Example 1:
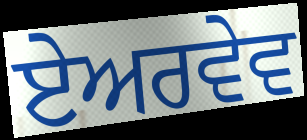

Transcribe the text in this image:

ਏਅਰਵੇਵ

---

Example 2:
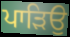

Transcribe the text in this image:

ਪਾੜਿਉ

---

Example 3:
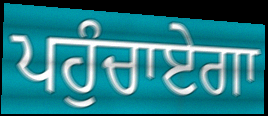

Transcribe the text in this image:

ਪਹੁੰਚਾਏਗਾ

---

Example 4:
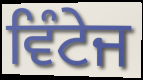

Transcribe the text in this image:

ਵਿੰਟੇਜ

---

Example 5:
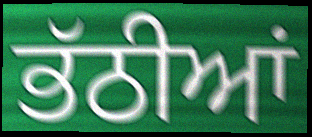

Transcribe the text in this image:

ਭੱਠੀਆਂ